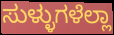
ಸುಳ್ಳುಗಳೆಲ್ಲಾ